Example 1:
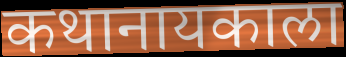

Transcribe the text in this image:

कथानायकाला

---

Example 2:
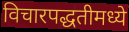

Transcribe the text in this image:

विचारपद्धतीमध्ये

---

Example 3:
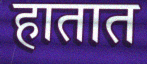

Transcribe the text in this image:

हातात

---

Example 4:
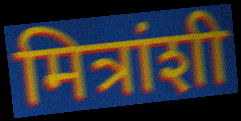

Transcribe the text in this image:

मित्रांशी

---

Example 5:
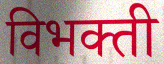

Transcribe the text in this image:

विभक्ती